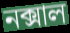
নক্সাল